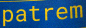
patrem